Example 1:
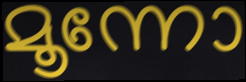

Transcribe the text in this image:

മൂന്നോ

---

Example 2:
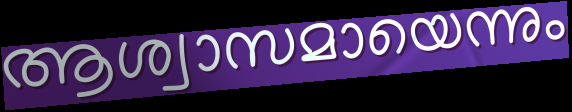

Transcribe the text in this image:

ആശ്വാസമായെന്നും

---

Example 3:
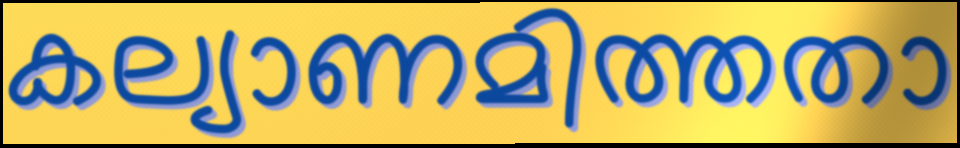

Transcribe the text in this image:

കല്യാണമിത്തതാ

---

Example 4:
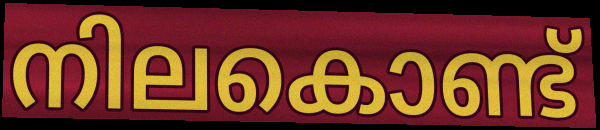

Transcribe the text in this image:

നിലകൊണ്ട്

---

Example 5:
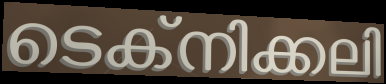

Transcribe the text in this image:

ടെക്‌നിക്കലി